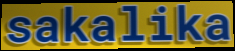
sakalika